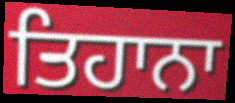
ਤਿਹਾਨਾ